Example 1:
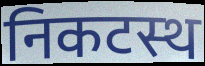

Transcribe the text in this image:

निकटस्थ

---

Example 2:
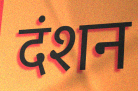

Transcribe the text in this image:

दंशन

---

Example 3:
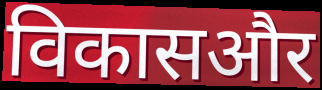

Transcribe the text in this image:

विकासऔर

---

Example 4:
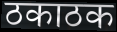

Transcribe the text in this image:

ठकाठक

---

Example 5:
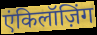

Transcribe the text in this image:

एंकिलॉज़िंग